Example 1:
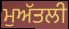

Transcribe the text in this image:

ਮੁਅੱਤਲੀ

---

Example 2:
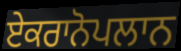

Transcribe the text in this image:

ਏਕਰਾਨੋਪਲਾਨ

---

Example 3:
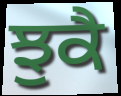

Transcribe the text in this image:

ਝੁਕੈ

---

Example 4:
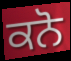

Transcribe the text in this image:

ਕਨੋ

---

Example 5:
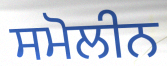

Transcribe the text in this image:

ਸਮੋਲੀਨ